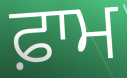
ਫ਼ਾਮ